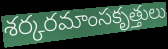
శర్కరమాంసకృత్తులు